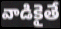
వాడికైతే